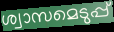
ശ്വാസമെടുപ്പ്